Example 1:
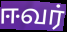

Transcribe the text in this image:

ஈவர்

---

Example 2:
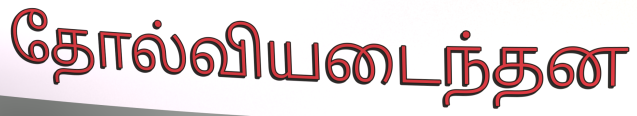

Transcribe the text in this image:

தோல்வியடைந்தன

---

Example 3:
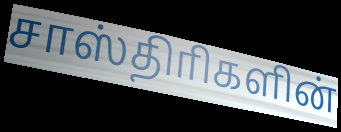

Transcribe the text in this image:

சாஸ்திரிகளின்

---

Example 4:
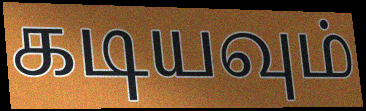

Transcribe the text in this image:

கடியவும்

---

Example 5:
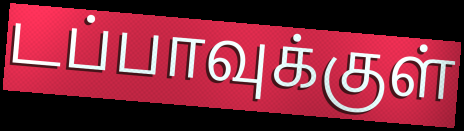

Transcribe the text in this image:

டப்பாவுக்குள்